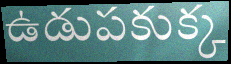
ఉడుపకుక్క